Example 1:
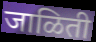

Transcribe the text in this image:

जाळिती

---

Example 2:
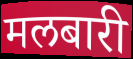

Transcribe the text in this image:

मलबारी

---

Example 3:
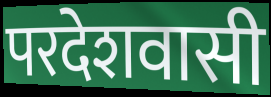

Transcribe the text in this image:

परदेशवासी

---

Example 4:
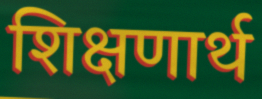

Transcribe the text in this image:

शिक्षणार्थ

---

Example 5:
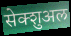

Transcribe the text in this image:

सेक्शुअल